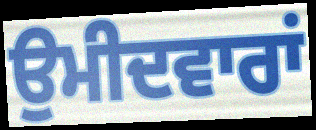
ਉਮੀਦਵਾਰਾਂ